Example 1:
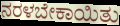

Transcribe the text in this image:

ನರಳಬೇಕಾಯಿತು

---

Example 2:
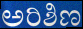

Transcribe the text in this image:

ಅರಿಶಿಣ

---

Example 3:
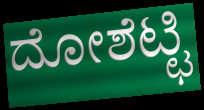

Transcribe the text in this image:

ದೋಶೆಟ್ಟಿ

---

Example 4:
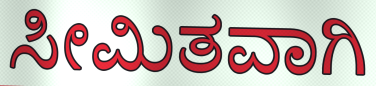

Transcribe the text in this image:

ಸೀಮಿತವಾಗಿ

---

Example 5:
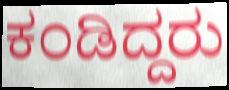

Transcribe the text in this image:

ಕಂಡಿದ್ದರು